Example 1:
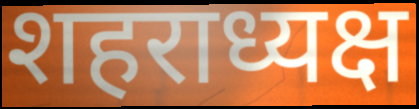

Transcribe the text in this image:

शहराध्यक्ष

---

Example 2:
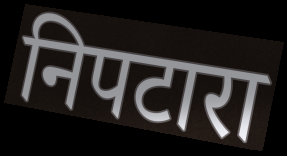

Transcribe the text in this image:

निपटारा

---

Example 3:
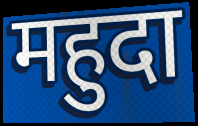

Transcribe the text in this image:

महुदा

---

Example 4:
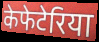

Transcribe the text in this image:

केफेटेरिया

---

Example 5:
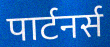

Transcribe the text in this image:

पार्टनर्स